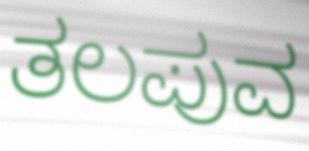
ತಲಪುವ